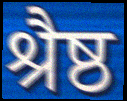
श्रैष्ठ